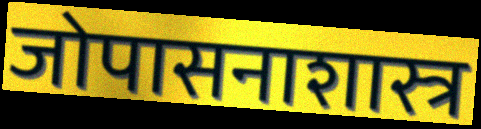
जोपासनाशास्त्र